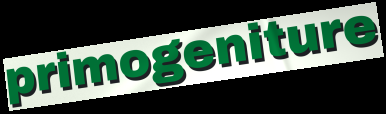
primogeniture